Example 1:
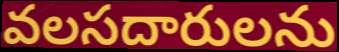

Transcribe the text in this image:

వలసదారులను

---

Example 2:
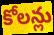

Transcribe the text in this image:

కోలన్లు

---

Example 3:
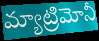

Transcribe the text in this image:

మ్యాట్రిమోనీ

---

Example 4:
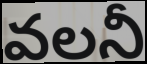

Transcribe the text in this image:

వలనీ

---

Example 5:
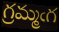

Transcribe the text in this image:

గ్రమ్మఁగ